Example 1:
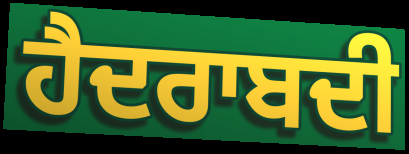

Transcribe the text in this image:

ਹੈਦਰਾਬਦੀ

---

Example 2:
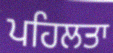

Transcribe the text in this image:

ਪਹਿਲਤਾ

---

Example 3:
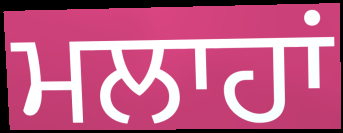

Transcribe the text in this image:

ਮਲਾਹਾਂ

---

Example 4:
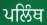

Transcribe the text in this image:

ਪਲਿੰਥ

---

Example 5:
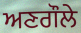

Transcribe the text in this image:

ਅਣਗੌਲੇ